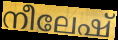
നീലേഷ്